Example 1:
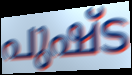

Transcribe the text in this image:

പുഷ്ട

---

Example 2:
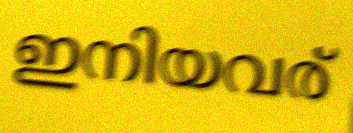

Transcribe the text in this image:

ഇനിയവര്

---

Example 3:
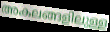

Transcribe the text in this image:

അകലങ്ങളിലുള്ള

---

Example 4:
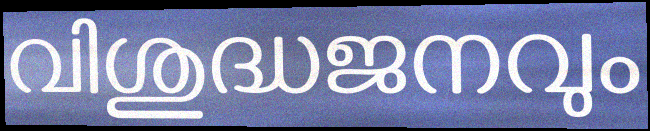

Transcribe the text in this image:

വിശുദ്ധജനവും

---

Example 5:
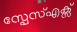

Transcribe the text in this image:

സ്പേസ്എക്സ്